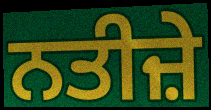
ਨਤੀਜ਼ੇ